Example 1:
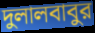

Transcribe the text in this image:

দুলালবাবুর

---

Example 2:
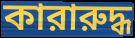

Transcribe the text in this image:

কারারুদ্ধ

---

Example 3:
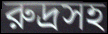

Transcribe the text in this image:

রুদ্রসহ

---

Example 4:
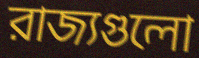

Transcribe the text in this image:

রাজ্যগুলো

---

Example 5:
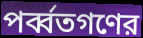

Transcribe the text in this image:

পর্ব্বতগণের